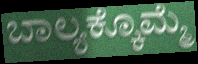
ಬಾಲ್ಯಕ್ಕೊಮ್ಮೆ